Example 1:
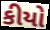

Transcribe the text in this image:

કીયો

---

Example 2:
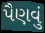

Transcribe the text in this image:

પૈણવું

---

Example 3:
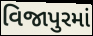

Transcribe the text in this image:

વિજાપુરમાં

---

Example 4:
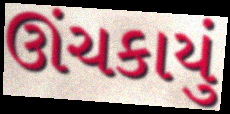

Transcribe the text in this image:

ઊંચકાયું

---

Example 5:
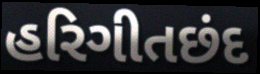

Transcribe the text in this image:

હરિગીતછંદ